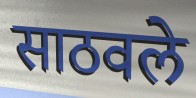
साठवले